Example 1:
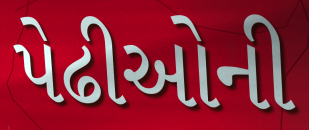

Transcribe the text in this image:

પેઢીઓની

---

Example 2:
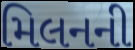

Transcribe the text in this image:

મિલનની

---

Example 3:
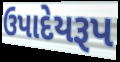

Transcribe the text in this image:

ઉપાદેયરૂપ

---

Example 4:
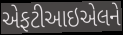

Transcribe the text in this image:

એફટીઆઇએલને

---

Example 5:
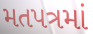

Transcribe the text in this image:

મતપત્રમાં